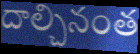
దాల్చినంత